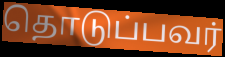
தொடுப்பவர்